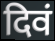
दिवं